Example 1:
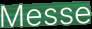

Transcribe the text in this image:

Messe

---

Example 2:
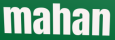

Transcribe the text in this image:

mahan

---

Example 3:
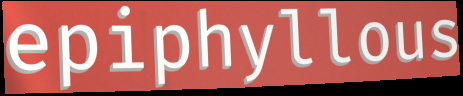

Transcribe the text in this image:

epiphyllous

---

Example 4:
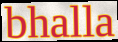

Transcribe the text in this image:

bhalla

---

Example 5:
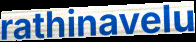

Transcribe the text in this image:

rathinavelu